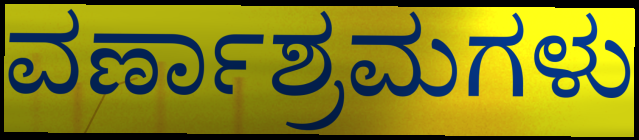
ವರ್ಣಾಶ್ರಮಗಳು